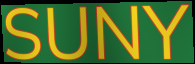
SUNY